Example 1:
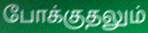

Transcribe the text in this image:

போக்குதலும்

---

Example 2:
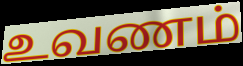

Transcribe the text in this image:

உவணம்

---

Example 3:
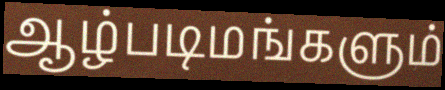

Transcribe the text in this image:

ஆழ்படிமங்களும்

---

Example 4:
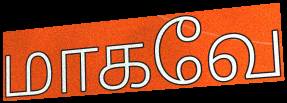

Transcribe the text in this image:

மாகவே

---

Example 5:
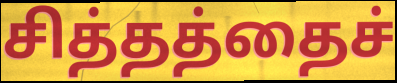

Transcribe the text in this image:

சித்தத்தைச்